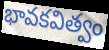
భావకవిత్వం